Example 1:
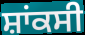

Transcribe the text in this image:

ਸ਼ਾਂਕਸੀ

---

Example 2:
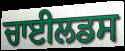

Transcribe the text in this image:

ਚਾਈਲਡਸ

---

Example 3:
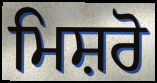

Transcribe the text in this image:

ਮਿਸ਼ਰੋ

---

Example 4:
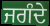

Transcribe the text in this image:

ਜਗੰਦੇ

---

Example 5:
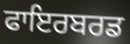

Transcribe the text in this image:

ਫਾਇਰਬਰਡ